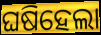
ଘଷିହେଲା